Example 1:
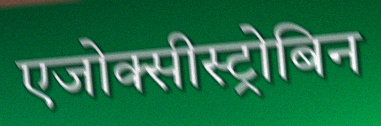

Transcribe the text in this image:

एजोक्सीस्ट्रोबिन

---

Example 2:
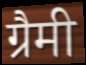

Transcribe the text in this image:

ग्रैमी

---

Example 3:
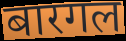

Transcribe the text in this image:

बारगल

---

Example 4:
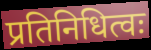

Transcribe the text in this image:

प्रतिनिधित्वः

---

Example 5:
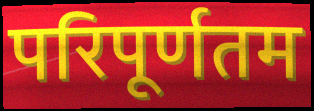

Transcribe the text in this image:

परिपूर्णतम